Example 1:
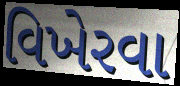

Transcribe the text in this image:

વિખેરવા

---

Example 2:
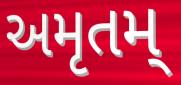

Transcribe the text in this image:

અમૃતમ્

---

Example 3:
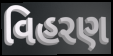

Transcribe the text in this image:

વિહરણ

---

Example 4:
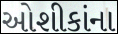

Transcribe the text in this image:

ઓશીકાંના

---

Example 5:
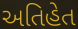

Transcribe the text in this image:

અતિહેત